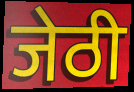
जेठी